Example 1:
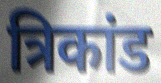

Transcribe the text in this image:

त्रिकांड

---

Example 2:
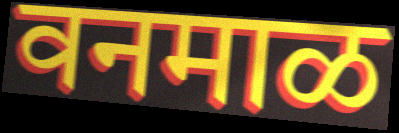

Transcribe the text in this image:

वनमाळ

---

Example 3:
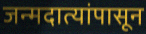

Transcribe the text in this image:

जन्मदात्यांपासून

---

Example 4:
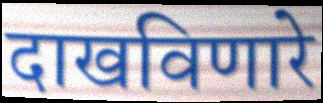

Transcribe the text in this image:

दाखविणारे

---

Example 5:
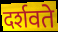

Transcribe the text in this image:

दर्शवते